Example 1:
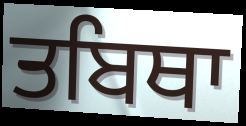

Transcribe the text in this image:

ਤਬਿਥਾ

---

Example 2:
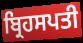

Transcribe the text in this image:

ਬ੍ਰਿਹਸਪਤੀ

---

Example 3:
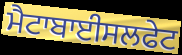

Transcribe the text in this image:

ਮੈਟਾਬਾਈਸਲਫੇਟ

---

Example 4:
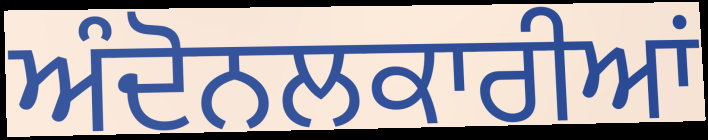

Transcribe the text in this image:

ਅੰਦੋਨਲਕਾਰੀਆਂ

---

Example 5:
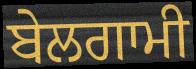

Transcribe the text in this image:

ਬੇਲਗਾਮੀ